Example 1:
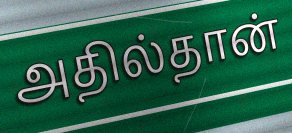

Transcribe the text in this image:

அதில்தான்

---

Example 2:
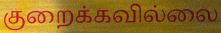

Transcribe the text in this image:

குறைக்கவில்லை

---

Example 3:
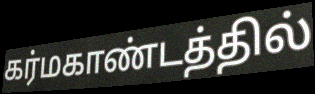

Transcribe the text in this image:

கர்மகாண்டத்தில்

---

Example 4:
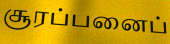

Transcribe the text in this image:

சூரப்பனைப்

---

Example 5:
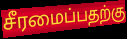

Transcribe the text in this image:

சீரமைப்பதற்கு